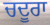
ਚਦੂਰਾ